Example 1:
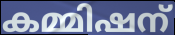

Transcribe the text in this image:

കമ്മിഷന്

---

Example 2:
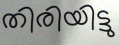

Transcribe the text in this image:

തിരിയിട്ടു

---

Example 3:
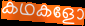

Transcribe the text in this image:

കഥകളോ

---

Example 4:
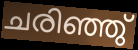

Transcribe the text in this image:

ചരിഞ്ഞു്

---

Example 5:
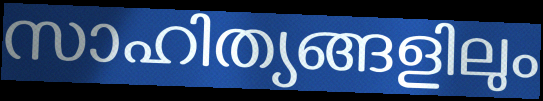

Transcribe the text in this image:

സാഹിത്യങ്ങളിലും